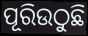
ପୂରିଉଠୁଛି